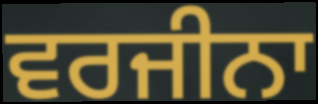
ਵਰਜੀਨਾ